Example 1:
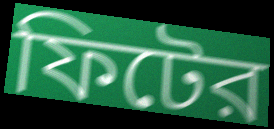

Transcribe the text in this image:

ফিটের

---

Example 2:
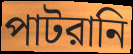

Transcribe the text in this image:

পাটরানি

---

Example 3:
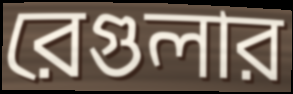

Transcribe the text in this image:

রেগুলার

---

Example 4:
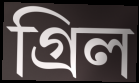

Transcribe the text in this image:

গ্রিল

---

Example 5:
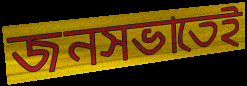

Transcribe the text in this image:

জনসভাতেই